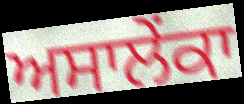
ਅਸਾਲੇਂਕਾ